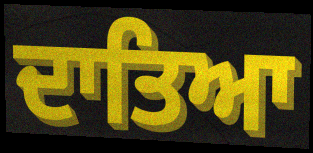
ਦਾਤਿਆ